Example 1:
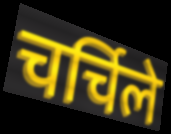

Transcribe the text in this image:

चर्चिले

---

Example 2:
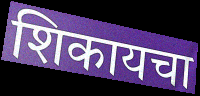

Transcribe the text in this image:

शिकायचा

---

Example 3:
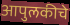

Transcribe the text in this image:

आपुलकीचे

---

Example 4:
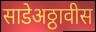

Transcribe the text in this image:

साडेअठ्ठावीस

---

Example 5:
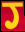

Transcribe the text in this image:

ग्‍